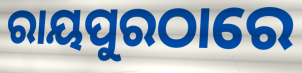
ରାୟପୁରଠାରେ